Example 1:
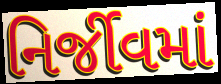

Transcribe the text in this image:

નિર્જીવમાં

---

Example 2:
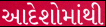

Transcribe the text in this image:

આદેશોમાંથી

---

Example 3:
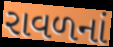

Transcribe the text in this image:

રાવળનાં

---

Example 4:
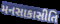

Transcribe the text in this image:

મનસાકાસીતિ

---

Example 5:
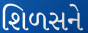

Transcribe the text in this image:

શિળસને